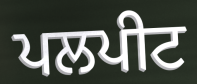
ਪਲਪੀਟ